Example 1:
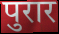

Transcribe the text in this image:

पुरार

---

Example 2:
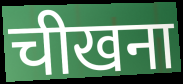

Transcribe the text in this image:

चीखना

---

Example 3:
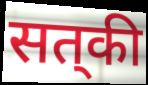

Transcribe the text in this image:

सत्‌की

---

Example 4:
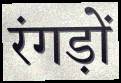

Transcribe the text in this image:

रंगड़ों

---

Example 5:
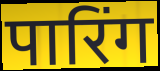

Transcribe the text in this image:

पारिंग